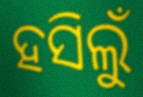
ହସିଲୁଁ